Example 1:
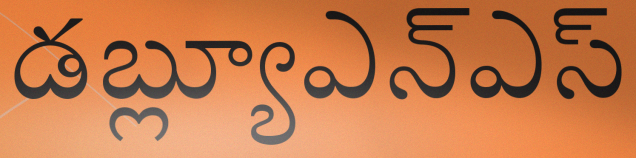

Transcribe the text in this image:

డబ్ల్యూఎన్ఎస్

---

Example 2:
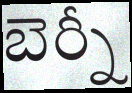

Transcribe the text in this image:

బెర్నీ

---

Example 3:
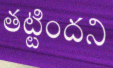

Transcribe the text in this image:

తట్టిందని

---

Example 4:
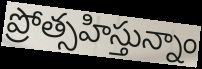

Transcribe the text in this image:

ప్రోత్సహిస్తున్నాం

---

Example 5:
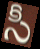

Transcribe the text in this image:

సీ